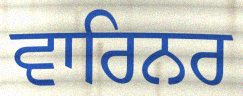
ਵਾਰਿਨਰ